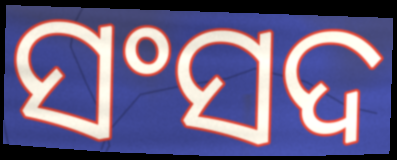
ସଂସଦ